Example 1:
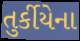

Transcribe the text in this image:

તુર્કીયેના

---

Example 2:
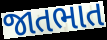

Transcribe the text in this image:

જાતભાત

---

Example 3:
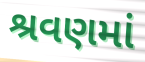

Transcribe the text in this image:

શ્રવણમાં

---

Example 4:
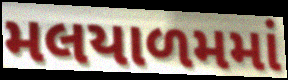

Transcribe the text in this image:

મલયાળમમાં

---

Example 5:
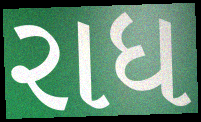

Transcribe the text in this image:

રાધ